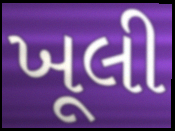
ખૂલી